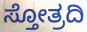
ಸ್ತೋತ್ರದಿ